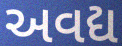
અવદ્ય